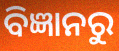
ବିଜ୍ଞାନରୁ